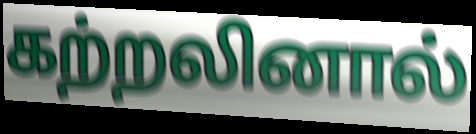
கற்றலினால்